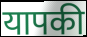
यापकी